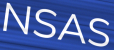
NSAS